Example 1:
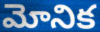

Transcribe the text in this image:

మోనిక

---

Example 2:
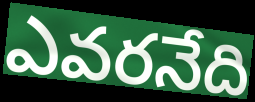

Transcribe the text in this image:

ఎవరనేది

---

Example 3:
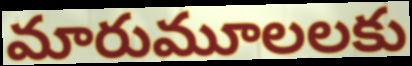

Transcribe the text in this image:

మారుమూలలకు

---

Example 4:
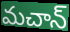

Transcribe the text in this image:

మచాన్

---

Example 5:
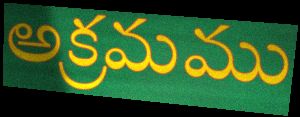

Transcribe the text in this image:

అక్రమము